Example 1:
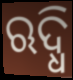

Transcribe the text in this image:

ଋଦ୍ଧି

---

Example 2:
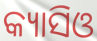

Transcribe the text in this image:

କ୍ୟାସିଓ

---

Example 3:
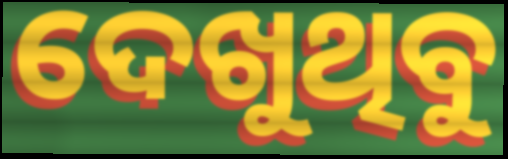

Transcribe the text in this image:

ଦେଖୁଥିବୁ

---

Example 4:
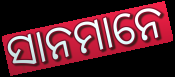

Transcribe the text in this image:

ସାନମାନେ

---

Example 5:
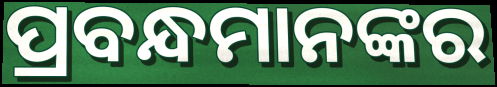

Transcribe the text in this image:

ପ୍ରବନ୍ଧମାନଙ୍କର